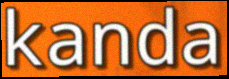
kanda